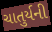
ચાતુર્યની